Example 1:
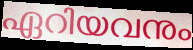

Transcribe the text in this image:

ഏറിയവനും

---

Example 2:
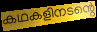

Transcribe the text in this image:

കഥകളിനടന്റെ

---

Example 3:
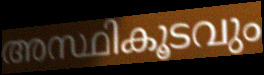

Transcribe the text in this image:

അസ്ഥികൂടവും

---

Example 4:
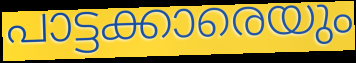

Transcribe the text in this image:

പാട്ടക്കാരെയും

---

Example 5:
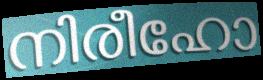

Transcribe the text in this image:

നിരീഹോ